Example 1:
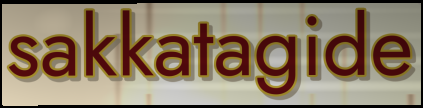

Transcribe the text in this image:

sakkatagide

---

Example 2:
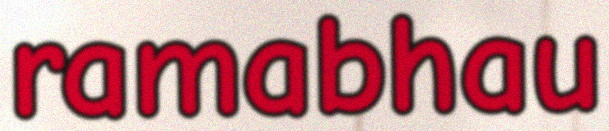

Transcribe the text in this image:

ramabhau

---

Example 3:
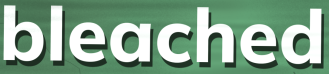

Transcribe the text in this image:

bleached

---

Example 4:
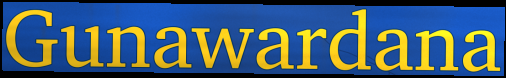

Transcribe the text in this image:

Gunawardana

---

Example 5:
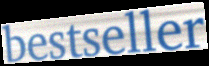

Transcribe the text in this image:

bestseller